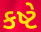
કષ્ટે